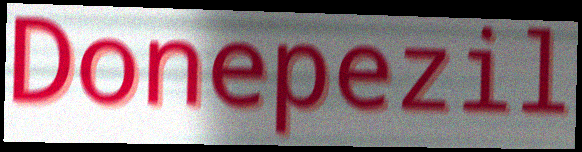
Donepezil